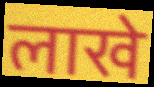
लाखे